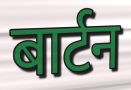
बार्टन